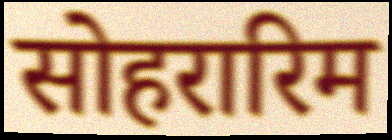
सोहरारिम